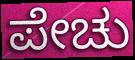
ಪೇಚು